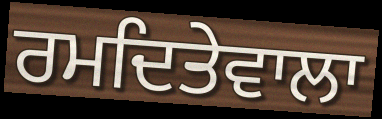
ਰਮਦਿਤੇਵਾਲਾ